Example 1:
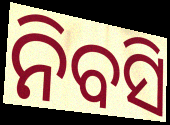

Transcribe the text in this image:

ନିବସି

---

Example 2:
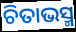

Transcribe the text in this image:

ଚିତାଭସ୍ମ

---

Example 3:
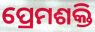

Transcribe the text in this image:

ପ୍ରେମଶକ୍ତି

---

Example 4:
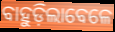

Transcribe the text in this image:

ବାହୁଡ଼ିଲାବେଳେ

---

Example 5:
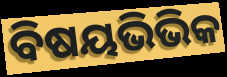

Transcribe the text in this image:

ବିଷୟଭିଭିକ